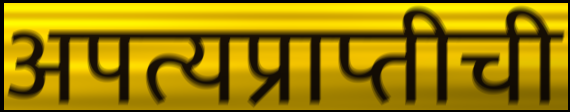
अपत्यप्राप्तीची